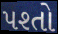
પશ્તો